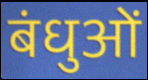
बंधुओं